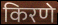
किरणे